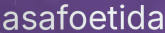
asafoetida